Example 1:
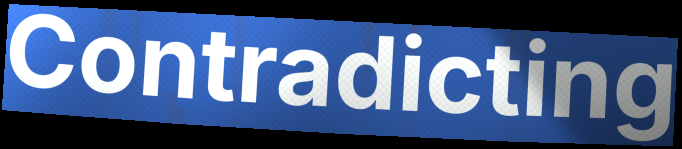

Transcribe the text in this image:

Contradicting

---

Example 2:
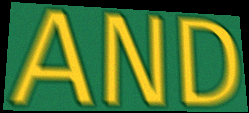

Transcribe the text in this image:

AND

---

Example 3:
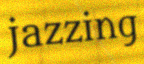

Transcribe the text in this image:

jazzing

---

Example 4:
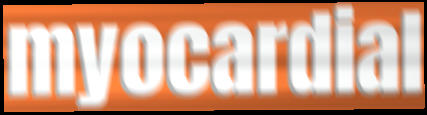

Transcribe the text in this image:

myocardial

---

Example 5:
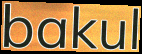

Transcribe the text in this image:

bakul